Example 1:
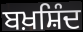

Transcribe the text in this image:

ਬਖ਼ਸ਼ਿੰਦ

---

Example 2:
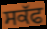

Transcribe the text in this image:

ਸਕੱਫ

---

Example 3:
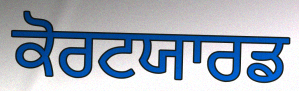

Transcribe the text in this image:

ਕੋਰਟਯਾਰਡ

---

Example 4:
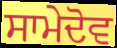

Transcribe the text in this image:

ਸਾਮੇਦੋਵ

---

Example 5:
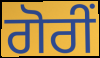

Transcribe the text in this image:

ਗੋਰੀਂ